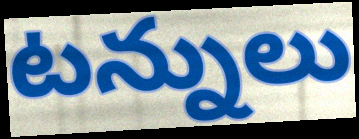
టన్నులు